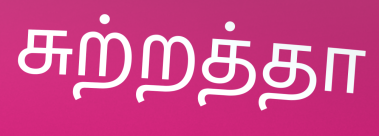
சுற்றத்தா